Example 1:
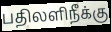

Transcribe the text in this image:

பதிலளிநீக்கு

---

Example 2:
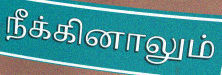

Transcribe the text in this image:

நீக்கினாலும்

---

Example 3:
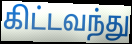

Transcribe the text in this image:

கிட்டவந்து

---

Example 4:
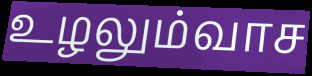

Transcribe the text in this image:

உழலும்வாச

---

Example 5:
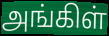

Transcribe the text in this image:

அங்கிள்